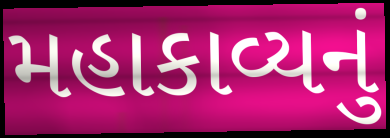
મહાકાવ્યનું